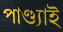
পাণ্ড্যাই